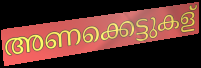
അണക്കെട്ടുകള്